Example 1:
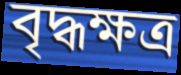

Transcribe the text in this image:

বৃদ্ধক্ষত্র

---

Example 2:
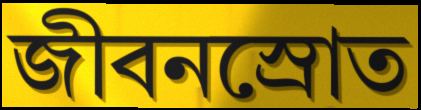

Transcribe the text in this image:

জীবনস্রোত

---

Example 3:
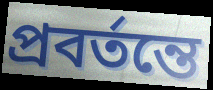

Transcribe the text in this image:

প্রবর্তন্তে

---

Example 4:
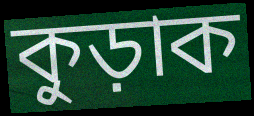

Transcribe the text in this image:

কুড়াক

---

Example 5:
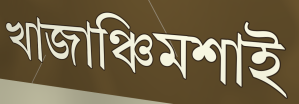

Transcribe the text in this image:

খাজাঞ্চিমশাই